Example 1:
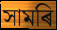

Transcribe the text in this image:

সামৰি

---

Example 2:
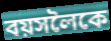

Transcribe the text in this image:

বয়সলৈকে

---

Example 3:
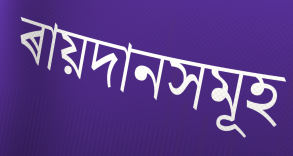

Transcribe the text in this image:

ৰায়দানসমূহ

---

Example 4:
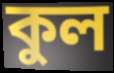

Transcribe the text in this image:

কুল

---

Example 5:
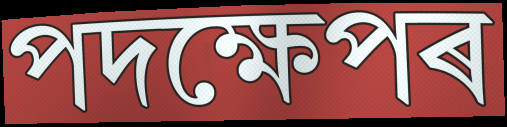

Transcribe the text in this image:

পদক্ষেপৰ